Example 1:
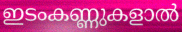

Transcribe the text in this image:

ഇടംകണ്ണുകളാൽ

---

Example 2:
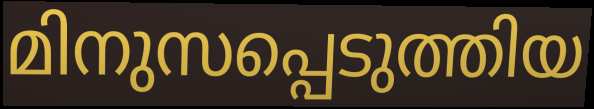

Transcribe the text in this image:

മിനുസപ്പെടുത്തിയ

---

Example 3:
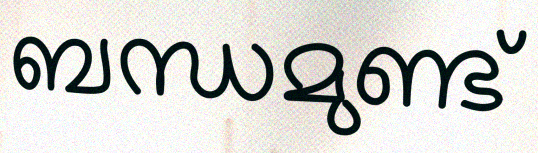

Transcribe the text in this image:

ബന്ധമുണ്ട്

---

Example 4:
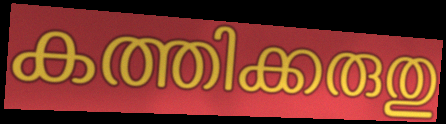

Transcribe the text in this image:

കത്തിക്കരുതു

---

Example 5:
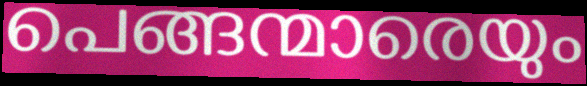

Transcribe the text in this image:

പെങ്ങന്മാരെയും